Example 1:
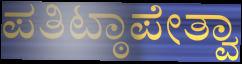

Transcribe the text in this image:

ಪತಿಟ್ಠಾಪೇತ್ವಾ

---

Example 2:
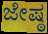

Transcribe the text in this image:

ಜೇಷ್ಠ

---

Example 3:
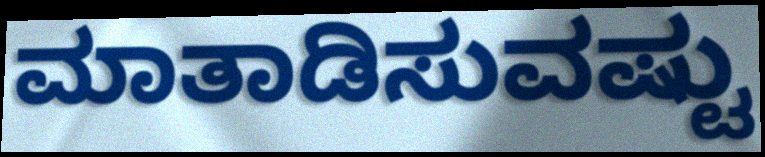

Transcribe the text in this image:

ಮಾತಾಡಿಸುವಷ್ಟು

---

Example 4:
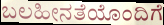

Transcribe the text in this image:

ಬಲಹೀನತೆಯೊಂದಿಗೆ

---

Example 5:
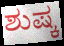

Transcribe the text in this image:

ಶುಷ್ಕ